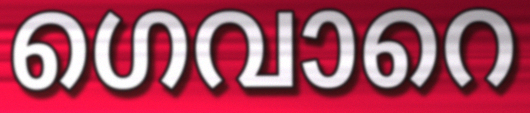
ഗെവാറെ